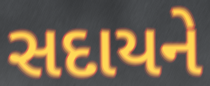
સદાયને